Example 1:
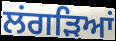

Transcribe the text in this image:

ਲਂਗੜਿਆਂ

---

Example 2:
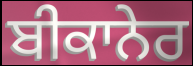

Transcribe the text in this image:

ਬੀਕਾਨੇਰ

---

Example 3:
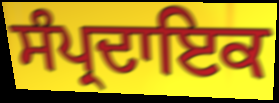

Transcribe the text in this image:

ਸੰਪ੍ਰਦਾਇਕ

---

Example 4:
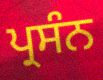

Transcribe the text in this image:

ਪ੍ਰਸੰਨ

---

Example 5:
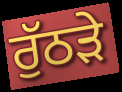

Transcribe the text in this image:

ਰੁੱਠੜੇ